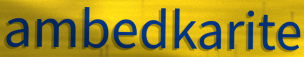
ambedkarite